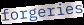
forgeries